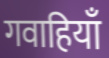
गवाहियाँ